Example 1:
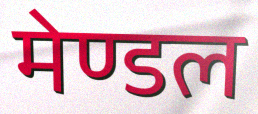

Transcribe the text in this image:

मेण्डल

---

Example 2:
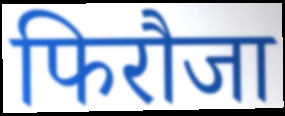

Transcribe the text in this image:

फिरौजा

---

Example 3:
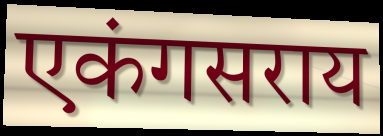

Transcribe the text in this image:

एकंगसराय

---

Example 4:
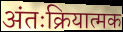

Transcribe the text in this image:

अंतःक्रियात्मक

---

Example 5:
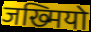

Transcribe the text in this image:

जख्मियो